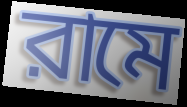
রামে